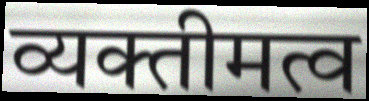
व्यक्तीमत्व